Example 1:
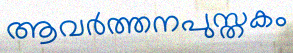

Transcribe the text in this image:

ആവർത്തനപുസ്തകം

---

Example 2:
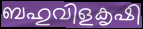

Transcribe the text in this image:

ബഹുവിളകൃഷി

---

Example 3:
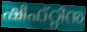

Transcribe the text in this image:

ഷിഫ്റ്റിനു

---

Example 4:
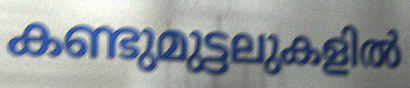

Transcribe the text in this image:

കണ്ടുമുട്ടലുകളിൽ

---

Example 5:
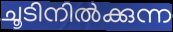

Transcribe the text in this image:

ചൂടിനിൽക്കുന്ന